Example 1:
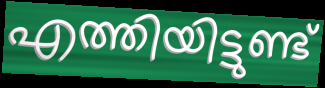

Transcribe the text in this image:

എത്തിയിട്ടുണ്ട്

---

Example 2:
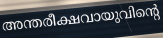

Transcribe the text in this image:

അന്തരീക്ഷവായുവിന്റെ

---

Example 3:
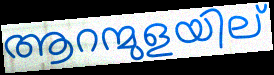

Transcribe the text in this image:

ആറന്മുളയില്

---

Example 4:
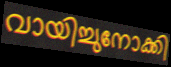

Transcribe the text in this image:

വായിച്ചുനോക്കി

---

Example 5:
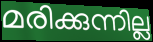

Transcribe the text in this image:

മരിക്കുന്നില്ല